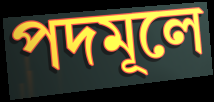
পদমূলে